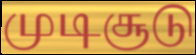
முடிசூடு